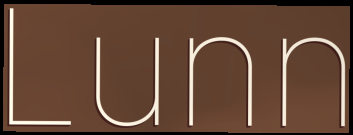
Lunn